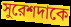
সুরেশদাকে